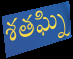
శతఘ్ని